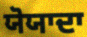
ਯੋਯਾਦਾ